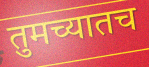
तुमच्यातच